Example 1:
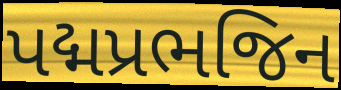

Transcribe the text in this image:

પદ્મપ્રભજિન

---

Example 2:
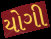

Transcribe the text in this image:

યોગી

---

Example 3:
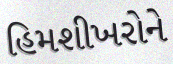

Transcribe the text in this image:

હિમશીખરોને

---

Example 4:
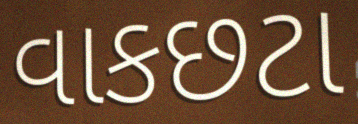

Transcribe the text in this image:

વાકછટા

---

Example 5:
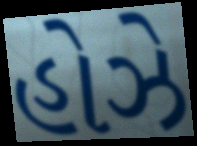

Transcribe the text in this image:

હોઝે